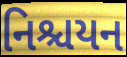
નિશ્ચયન